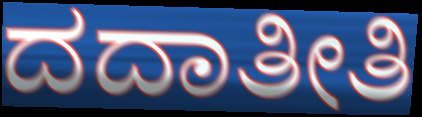
ದದಾತೀತಿ